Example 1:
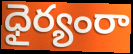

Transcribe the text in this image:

ధైర్యంరా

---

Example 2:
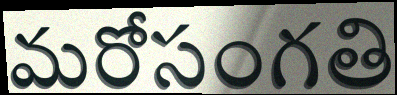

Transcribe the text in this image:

మరోసంగతి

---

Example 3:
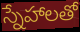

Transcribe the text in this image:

స్నేహాలతో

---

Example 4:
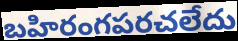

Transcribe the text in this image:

బహిరంగపరచలేదు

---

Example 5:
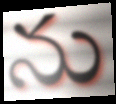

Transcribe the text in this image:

ను